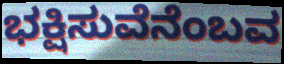
ಭಕ್ಷಿಸುವೆನೆಂಬವ